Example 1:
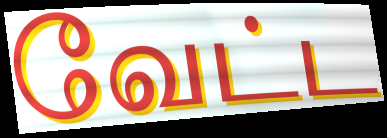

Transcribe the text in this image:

வேட்ட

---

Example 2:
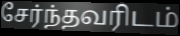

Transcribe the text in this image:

சேர்ந்தவரிடம்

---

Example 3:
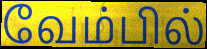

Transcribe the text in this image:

வேம்பில்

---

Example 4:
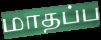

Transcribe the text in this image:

மாதப்ப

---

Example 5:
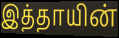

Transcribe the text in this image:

இத்தாயின்